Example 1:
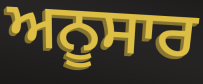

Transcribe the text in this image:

ਅਨੂਸਾਰ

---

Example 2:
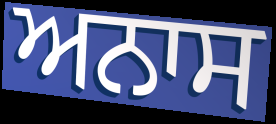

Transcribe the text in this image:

ਅਨਾਸ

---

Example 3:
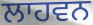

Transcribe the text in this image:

ਲਾਹਵਨ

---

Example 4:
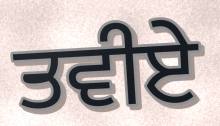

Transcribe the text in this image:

ਤਵੀਏ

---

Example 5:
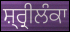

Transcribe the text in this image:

ਸ਼੍ਰ੍ਰੀਲੰਕਾ